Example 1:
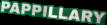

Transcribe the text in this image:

PAPPILLARY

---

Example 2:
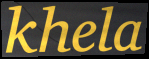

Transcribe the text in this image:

khela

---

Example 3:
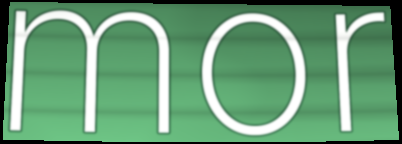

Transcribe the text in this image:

mor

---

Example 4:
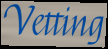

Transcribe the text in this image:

Vetting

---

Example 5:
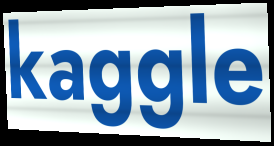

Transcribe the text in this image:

kaggle